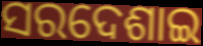
ସରଦେଶାଇ